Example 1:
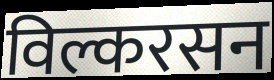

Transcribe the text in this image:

विल्करसन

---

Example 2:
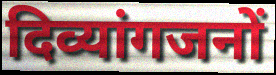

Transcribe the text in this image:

दिव्यांगजनों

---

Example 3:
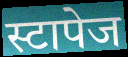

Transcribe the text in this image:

स्टापेज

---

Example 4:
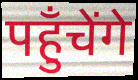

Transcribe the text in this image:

पहुँचेंगे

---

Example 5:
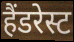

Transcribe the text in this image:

हैंडरेस्ट